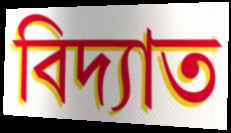
বিদ্যাত